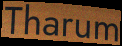
Tharum